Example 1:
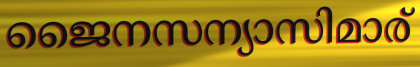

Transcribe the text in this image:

ജൈനസന്യാസിമാര്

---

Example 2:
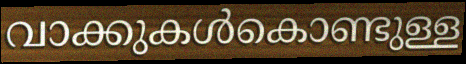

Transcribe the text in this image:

വാക്കുകൾകൊണ്ടുള്ള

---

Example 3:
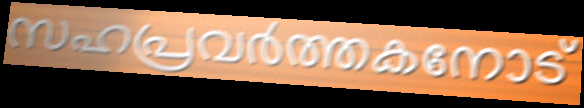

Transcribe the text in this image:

സഹപ്രവർത്തകനോട്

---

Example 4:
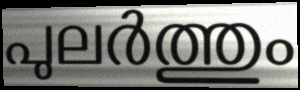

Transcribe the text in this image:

പുലർത്തും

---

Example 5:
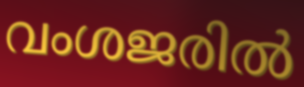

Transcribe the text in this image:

വംശജരിൽ